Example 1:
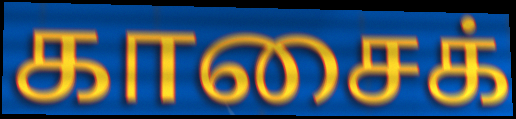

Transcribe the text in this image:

காசைக்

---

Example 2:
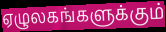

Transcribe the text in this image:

ஏழுலகங்களுக்கும்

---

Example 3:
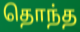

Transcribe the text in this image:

தொந்த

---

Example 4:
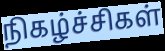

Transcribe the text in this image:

நிகழ்ச்சிகள்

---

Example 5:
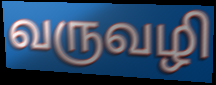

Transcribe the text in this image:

வருவழி